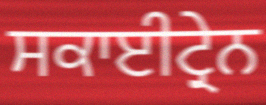
ਸਕਾਈਟ੍ਰੇਨ